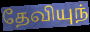
தேவியுந்